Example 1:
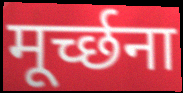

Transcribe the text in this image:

मूर्च्छना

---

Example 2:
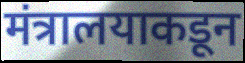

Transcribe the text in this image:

मंत्रालयाकडून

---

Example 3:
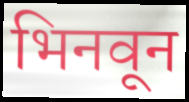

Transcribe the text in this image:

भिनवून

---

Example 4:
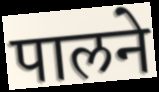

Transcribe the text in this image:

पालने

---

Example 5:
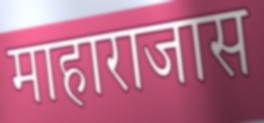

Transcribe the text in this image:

माहाराजास